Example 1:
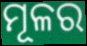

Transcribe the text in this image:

ମୂଳର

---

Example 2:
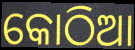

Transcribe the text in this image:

କୋଠିଆ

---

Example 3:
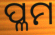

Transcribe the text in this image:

ପ୍ଳମ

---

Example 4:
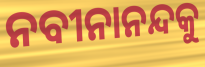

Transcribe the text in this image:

ନବୀନାନନ୍ଦକୁ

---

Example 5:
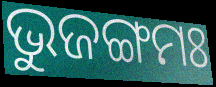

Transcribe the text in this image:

ଭୁଜଙ୍ଗମଃ